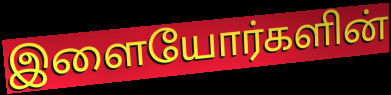
இளையோர்களின்